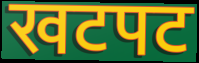
खटपट